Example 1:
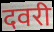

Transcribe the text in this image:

दवरी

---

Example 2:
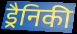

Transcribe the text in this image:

ड्रैनिकी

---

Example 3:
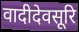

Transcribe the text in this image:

वादीदेवसूरि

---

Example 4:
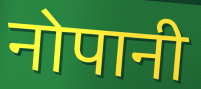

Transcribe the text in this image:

नोपानी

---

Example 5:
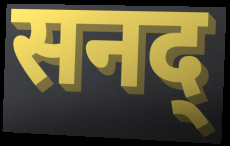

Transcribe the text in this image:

सनद्